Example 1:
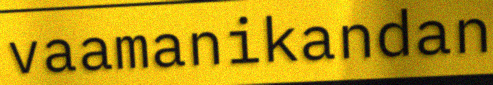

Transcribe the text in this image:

vaamanikandan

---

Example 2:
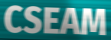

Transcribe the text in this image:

CSEAM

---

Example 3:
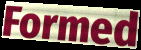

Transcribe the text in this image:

Formed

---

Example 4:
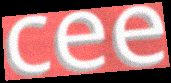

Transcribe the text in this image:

cee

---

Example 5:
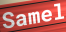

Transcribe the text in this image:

Samel